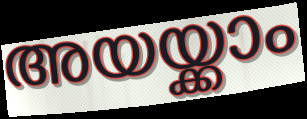
അയയ്ക്കാം